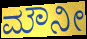
ಮೌನೀ